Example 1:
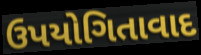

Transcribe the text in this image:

ઉપયોગિતાવાદ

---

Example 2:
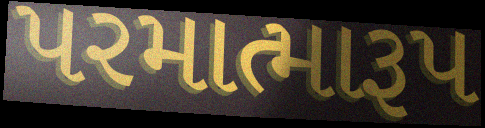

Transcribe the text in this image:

પરમાત્મારૂપ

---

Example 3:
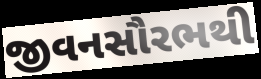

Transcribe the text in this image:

જીવનસૌરભથી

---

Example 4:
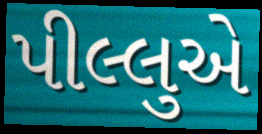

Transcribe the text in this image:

પીલ્લુએ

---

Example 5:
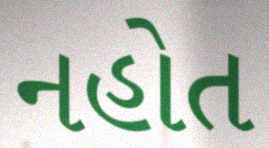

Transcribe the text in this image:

નહોત